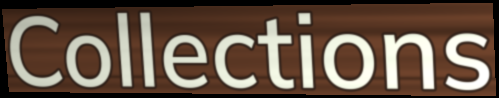
Collections